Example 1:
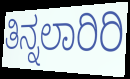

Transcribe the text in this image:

ತಿನ್ನಲಾರಿರಿ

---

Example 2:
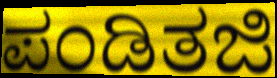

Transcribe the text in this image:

ಪಂಡಿತಜಿ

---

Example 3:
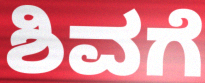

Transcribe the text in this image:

ಶಿವಗೆ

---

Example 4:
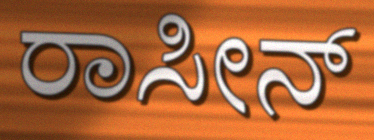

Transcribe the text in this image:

ರಾಸೀನ್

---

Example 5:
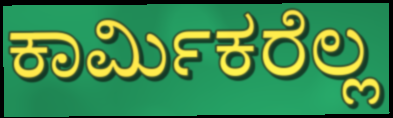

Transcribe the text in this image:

ಕಾರ್ಮಿಕರೆಲ್ಲ